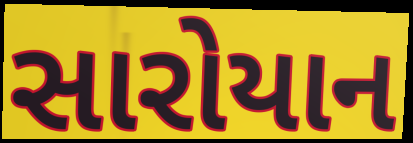
સારોયાન